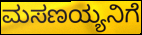
ಮಸಣಯ್ಯನಿಗೆ